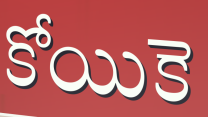
కోయికె